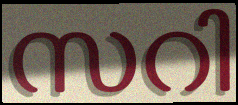
സറി